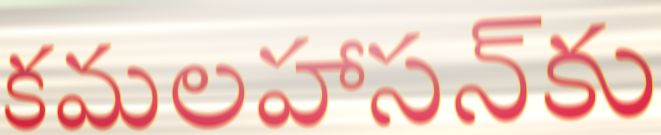
కమలహాసన్‌కు